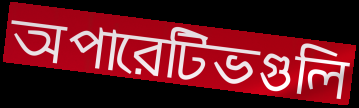
অপারেটিভগুলি